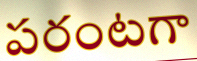
పరంటగా